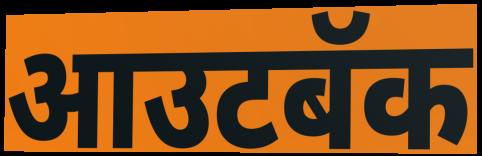
आउटबॅक